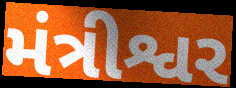
મંત્રીશ્વર